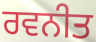
ਰਵਨੀਤ